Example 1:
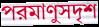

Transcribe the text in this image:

পরমাণুসদৃশ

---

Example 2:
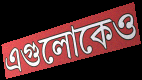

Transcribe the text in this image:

এগুলোকেও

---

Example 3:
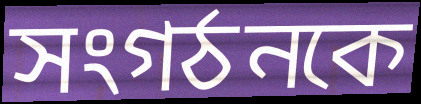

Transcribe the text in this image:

সংগঠনকে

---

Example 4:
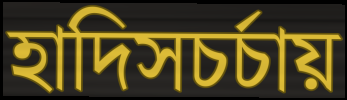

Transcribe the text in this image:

হাদিসচর্চায়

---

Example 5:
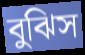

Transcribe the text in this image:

বুঝিস